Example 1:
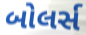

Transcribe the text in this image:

બોલર્સ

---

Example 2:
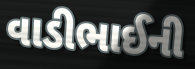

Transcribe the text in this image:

વાડીભાઈની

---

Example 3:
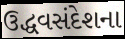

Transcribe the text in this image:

ઉદ્ધવસંદેશના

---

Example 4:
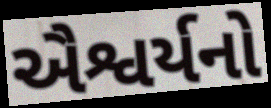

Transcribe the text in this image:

ઐશ્વર્યનો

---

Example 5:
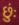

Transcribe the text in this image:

છુંઃ